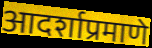
आदर्शाप्रमाणे